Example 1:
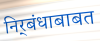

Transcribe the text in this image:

निर्बंधाबाबत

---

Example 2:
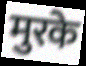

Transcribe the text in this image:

मुरके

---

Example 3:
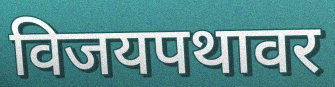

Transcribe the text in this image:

विजयपथावर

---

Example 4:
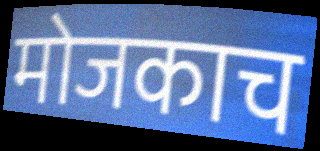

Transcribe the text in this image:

मोजकाच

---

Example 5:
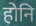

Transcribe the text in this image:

होनि